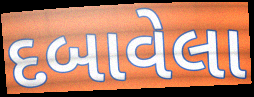
દબાવેલા